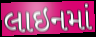
લાઇનમાં